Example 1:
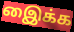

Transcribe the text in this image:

இைக்க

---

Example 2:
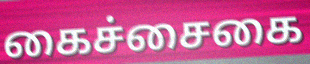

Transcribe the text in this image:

கைச்சைகை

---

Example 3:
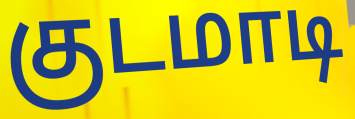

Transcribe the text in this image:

குடமாடி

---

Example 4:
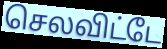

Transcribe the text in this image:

செலவிட்டே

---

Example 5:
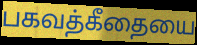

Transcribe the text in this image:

பகவத்கீதையை